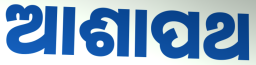
ଆଶାପଥ